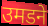
उमडने